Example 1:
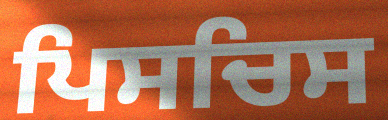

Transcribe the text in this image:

ਪਿਸਚਿਸ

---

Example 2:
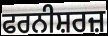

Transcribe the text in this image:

ਫਰਨੀਸ਼ਰਜ਼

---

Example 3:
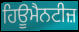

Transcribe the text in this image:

ਹਿਊਮੈਨਟੀਜ਼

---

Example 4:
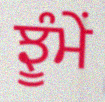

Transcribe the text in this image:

ਝੂੰਮੇਂ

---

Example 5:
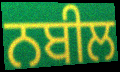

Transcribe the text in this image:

ਨਬੀਲ